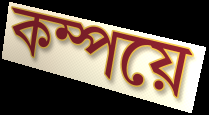
কম্পয়ে